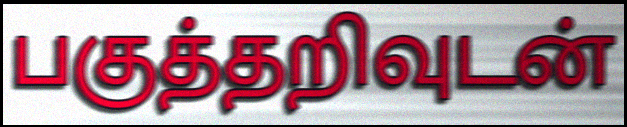
பகுத்தறிவுடன்